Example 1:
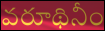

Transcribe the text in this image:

వరూథినీం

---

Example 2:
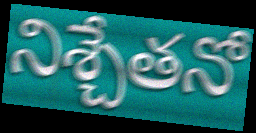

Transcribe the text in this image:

నిశ్చేతనో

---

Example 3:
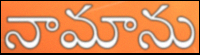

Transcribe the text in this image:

నామాను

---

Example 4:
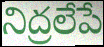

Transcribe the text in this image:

నిద్రలేపే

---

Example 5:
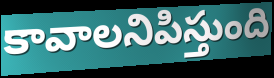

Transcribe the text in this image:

కావాలనిపిస్తుంది